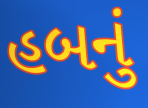
હબનું